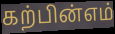
கற்பின்எம்